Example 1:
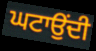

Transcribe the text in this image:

ਘਟਾਉਂਦੀ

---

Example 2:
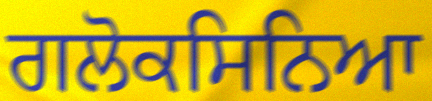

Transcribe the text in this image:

ਗਲੋਕਸਿਨਿਆ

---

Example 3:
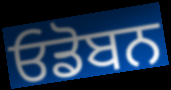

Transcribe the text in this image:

ਓਡੋਬਨ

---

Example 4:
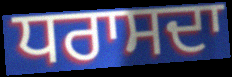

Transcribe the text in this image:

ਧਰਾਸਦਾ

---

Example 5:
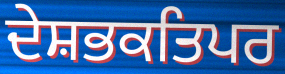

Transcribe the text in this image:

ਦੇਸ਼ਭਕਤਿਪਰ